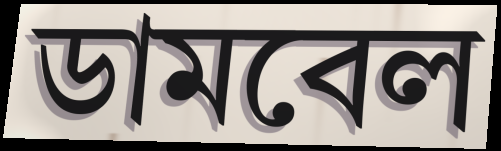
ডামবেল